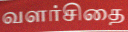
வளர்சிதை